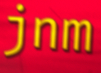
jnm